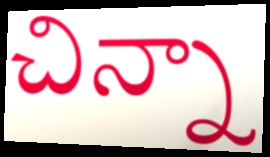
చిన్నా